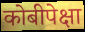
कोबीपेक्षा